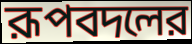
রূপবদলের